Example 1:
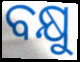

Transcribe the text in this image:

ବକ୍ଷୁ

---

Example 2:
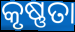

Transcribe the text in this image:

କୃଷ୍ଣତା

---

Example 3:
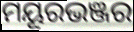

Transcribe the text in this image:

ମୟୂରଭଞ୍ଜର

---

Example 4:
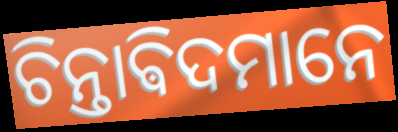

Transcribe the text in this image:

ଚିନ୍ତାଵିଦମାନେ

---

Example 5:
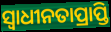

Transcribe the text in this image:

ସ୍ୱାଧୀନତାପ୍ରାପ୍ତି